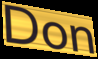
Don